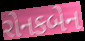
રોનકબેન